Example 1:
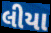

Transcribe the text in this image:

લીયા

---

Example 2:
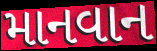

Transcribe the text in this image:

માનવાન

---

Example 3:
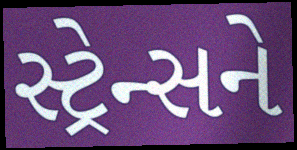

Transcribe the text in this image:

સ્ટ્રેન્સને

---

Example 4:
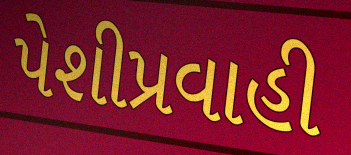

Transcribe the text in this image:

પેશીપ્રવાહી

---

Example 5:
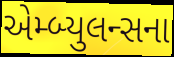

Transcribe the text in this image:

એમ્બ્યુલન્સના